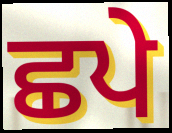
ਛਪੇ